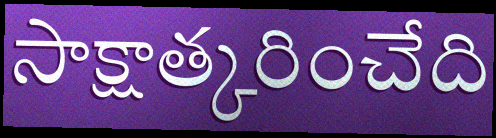
సాక్షాత్కరించేది